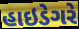
હાઇડેગરે